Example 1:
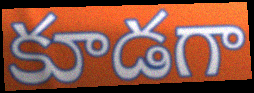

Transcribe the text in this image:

కూడగా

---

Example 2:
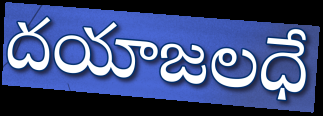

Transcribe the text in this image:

దయాజలధే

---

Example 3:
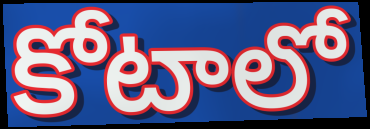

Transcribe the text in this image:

కోటాలో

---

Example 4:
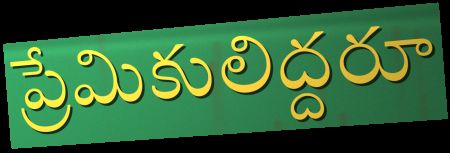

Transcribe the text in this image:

ప్రేమికులిద్దరూ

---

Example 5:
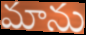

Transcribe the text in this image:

మాను